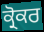
ਕ੍ਰੋਕਰ